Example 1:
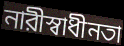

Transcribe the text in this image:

নারীস্বাধীনতা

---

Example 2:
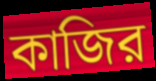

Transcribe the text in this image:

কাজির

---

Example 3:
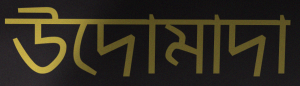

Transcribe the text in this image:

উদোমাদা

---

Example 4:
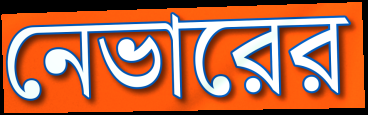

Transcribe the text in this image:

নেভারের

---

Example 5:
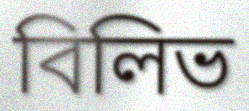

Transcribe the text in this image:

বিলিভ